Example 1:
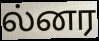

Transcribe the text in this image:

ல்னர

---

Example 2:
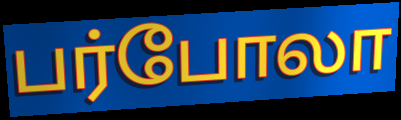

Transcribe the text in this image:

பர்போலா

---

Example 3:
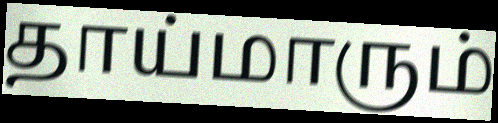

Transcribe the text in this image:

தாய்மாரும்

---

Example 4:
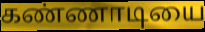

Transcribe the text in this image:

கண்ணாடியை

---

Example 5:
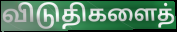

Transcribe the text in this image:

விடுதிகளைத்